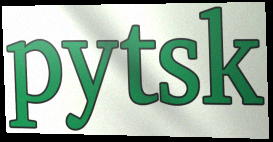
pytsk